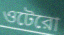
ওটেরো